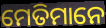
ମେତିମାନେ